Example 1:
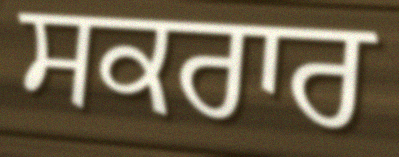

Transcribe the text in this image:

ਸਕਰਾਰ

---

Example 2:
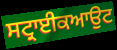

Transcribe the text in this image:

ਸਟ੍ਰਾਈਕਆਉਟ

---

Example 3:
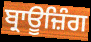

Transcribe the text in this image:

ਬ੍ਰਾਊਜ਼ਿੰਗ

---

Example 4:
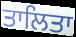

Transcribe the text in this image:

ਤਾਲਿਤਾ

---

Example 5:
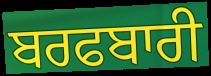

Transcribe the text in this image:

ਬਰਫਬਾਰੀ